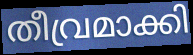
തീവ്രമാക്കി